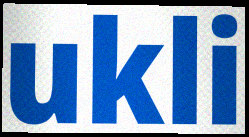
ukli